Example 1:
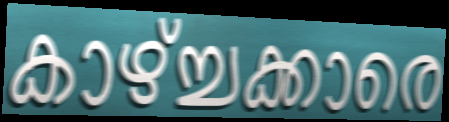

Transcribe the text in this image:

കാഴ്ച്ചക്കാരെ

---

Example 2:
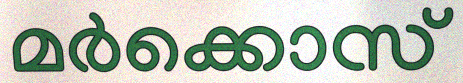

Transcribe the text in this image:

മർക്കൊസ്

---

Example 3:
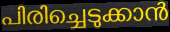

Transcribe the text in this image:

പിരിച്ചെടുക്കാൻ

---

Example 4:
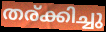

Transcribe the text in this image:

തര്ക്കിച്ചു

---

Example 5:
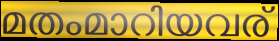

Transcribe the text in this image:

മതംമാറിയവര്